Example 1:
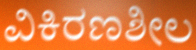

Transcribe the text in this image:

ವಿಕಿರಣಶೀಲ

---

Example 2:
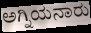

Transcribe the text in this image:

ಅಗ್ನಿಯನಾರು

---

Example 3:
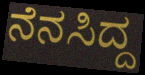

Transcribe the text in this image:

ನೆನಸಿದ್ದ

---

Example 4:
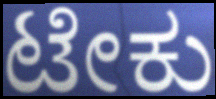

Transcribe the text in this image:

ಟೇಕು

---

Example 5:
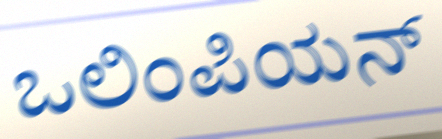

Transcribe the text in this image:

ಒಲಿಂಪಿಯನ್